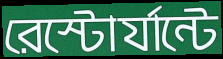
রেস্টোর্যান্টে